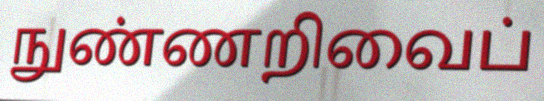
நுண்ணறிவைப்